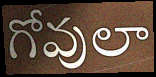
గోవులా